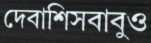
দেবাশিসবাবুও